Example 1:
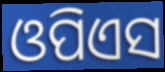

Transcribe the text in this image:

ଓପିଏସ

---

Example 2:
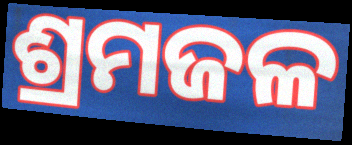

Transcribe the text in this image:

ଶ୍ରମଜଳ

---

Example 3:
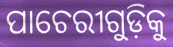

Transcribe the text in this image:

ପାଚେରୀଗୁଡ଼ିକୁ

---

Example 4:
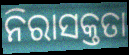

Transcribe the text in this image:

ନିରାସକ୍ତତା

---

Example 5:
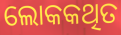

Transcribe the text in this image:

ଲୋକକଥିତ